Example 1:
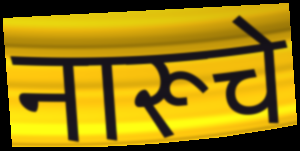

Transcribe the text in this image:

नारूचे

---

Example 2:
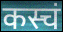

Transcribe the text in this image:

कस्चं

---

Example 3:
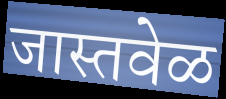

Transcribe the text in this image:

जास्तवेळ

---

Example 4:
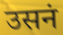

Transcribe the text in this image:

उसनं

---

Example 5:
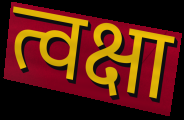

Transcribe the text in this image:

त्वक्षा